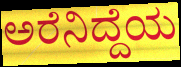
ಅರೆನಿದ್ದೆಯ